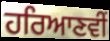
ਹਰਿਆਣਵੀਂ